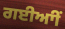
ਗਈਆੀਂ